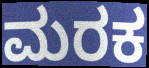
ಮರಕ